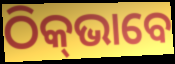
ଠିକ୍‌ଭାବେ